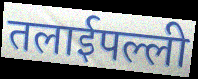
तलाईपल्ली